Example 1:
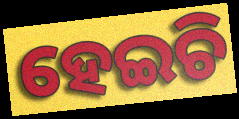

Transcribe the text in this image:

ହେଇଚି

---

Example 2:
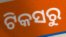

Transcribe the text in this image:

ଟିକସରୁ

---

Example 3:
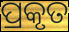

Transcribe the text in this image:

ପ୍ରକୃତ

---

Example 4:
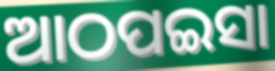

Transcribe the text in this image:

ଆଠପଇସା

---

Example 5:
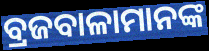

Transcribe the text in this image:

ବ୍ରଜବାଳାମାନଙ୍କ